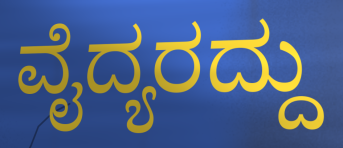
ವೈದ್ಯರದ್ದು